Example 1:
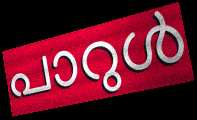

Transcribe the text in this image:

പാറുൾ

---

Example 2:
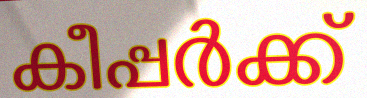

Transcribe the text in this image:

കീപ്പർക്ക്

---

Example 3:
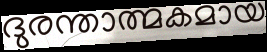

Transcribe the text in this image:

ദുരന്താത്മകമായ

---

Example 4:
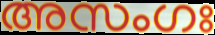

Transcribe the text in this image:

അസംഗഃ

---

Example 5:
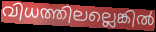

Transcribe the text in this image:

വിധത്തിലല്ലെങ്കിൽ